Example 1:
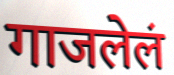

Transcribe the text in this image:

गाजलेलं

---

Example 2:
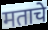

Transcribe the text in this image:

मताचे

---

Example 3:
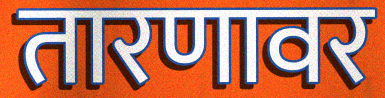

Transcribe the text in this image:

तारणावर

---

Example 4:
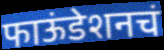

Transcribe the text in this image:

फाऊंडेशनचं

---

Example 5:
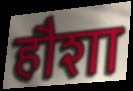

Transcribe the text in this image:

हौशा